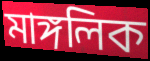
মাঙ্গলিক